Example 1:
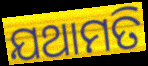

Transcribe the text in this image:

ଯଥାମତି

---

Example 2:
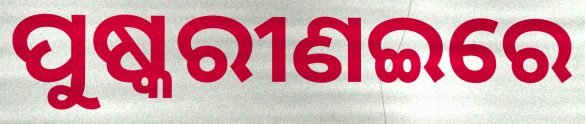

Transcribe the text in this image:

ପୁଷ୍କରୀଣଇରେ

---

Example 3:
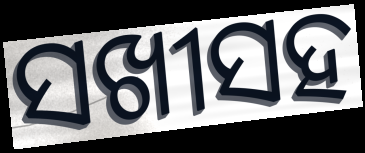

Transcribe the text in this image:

ସଖୀସହ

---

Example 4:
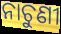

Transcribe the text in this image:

ନାଚୁଣୀ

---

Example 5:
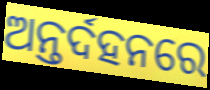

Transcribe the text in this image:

ଅନ୍ତର୍ଦହନରେ